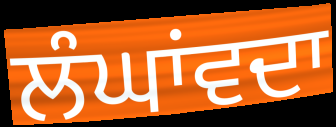
ਲੰਘਾਂਵਦਾ